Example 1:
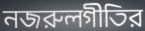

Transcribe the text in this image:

নজরুলগীতির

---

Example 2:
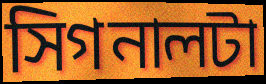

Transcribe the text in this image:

সিগনালটা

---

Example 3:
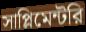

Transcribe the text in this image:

সাপ্লিমেন্টরি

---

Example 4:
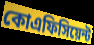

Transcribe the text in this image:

কোএফিসিয়েন্ট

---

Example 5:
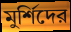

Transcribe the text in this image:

মুর্শিদের